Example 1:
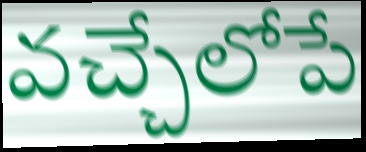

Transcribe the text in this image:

వచ్చేలోపే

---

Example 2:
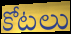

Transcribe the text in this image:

కోటలు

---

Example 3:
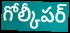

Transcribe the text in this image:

గోల్కీపర్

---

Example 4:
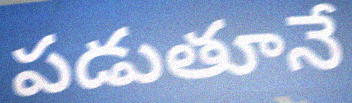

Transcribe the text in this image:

పడుతూనే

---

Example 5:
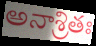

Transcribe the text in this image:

అనాశ్రితః